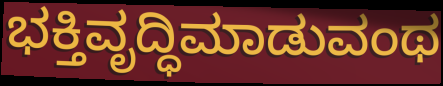
ಭಕ್ತಿವೃದ್ಧಿಮಾಡುವಂಥ